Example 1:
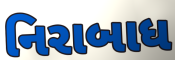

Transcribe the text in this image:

નિરાબાધ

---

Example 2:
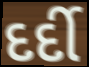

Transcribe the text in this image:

દર્દી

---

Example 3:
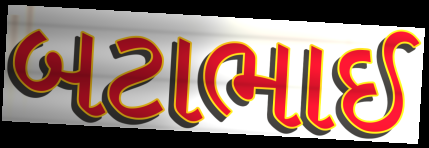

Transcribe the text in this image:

બટાભાઈ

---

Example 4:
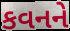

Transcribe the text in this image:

કવનને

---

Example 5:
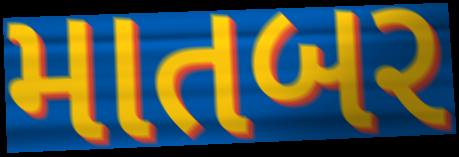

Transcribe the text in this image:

માતબર